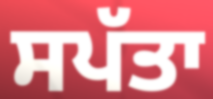
ਸਪੱਤਾ